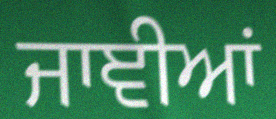
ਜਾਞੀਆਂ